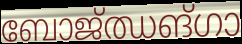
ബോജ്ഝങ്ഗാ